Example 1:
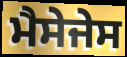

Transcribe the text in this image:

ਮੈਸੇਜੇਸ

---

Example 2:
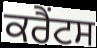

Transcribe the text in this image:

ਕਰੈਂਟਸ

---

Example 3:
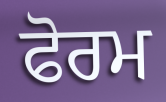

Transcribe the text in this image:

ਫੋਰਮ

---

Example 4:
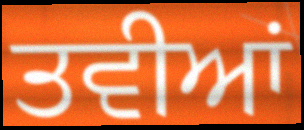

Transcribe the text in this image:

ਤਵੀਆਂ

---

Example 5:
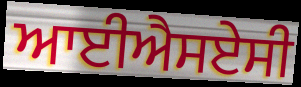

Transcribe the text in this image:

ਆਈਐਸਏਸੀ